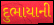
દુભાયાની